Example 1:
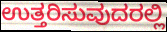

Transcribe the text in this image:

ಉತ್ತರಿಸುವುದರಲ್ಲಿ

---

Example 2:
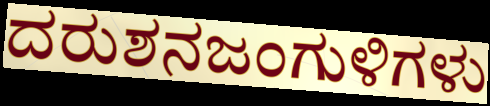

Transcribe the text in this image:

ದರುಶನಜಂಗುಳಿಗಳು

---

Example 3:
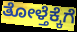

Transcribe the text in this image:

ತೋಳ್ತೆಕ್ಕೆಗೆ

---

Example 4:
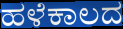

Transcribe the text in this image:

ಹಳೆಕಾಲದ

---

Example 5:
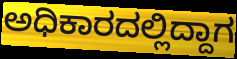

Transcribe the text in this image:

ಅಧಿಕಾರದಲ್ಲಿದ್ದಾಗ